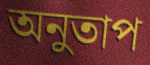
অনুতাপ